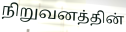
நிறுவனத்தின்